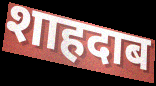
शाहदाब